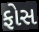
ફોસ